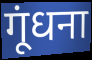
गूंधना